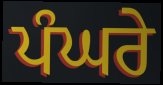
ਪੰਘਰੇ